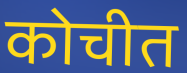
कोचीत